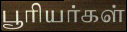
பூரியர்கள்